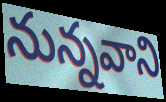
నున్నవాని